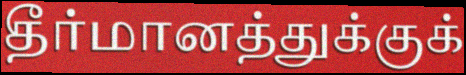
தீர்மானத்துக்குக்